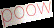
poow